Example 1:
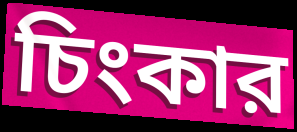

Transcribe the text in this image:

চিংকার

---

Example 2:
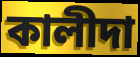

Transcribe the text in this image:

কালীদা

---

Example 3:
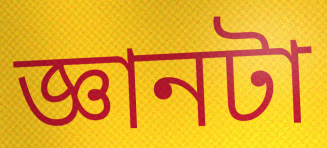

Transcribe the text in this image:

জ্ঞানটা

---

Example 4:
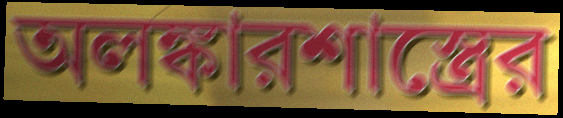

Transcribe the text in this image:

অলঙ্কারশাস্ত্রের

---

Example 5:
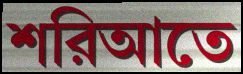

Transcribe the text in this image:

শরিআতে